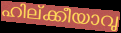
ഹില്ക്കീയാവു